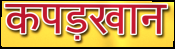
कपड़खान